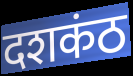
दशकंठ